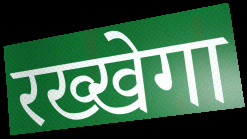
रख्खेगा